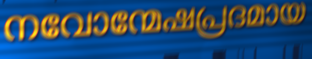
നവോന്മേഷപ്രദമായ